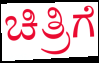
ಚಿತ್ರಿಗೆ